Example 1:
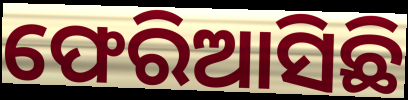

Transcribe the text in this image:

ଫେରିଆସିଛି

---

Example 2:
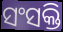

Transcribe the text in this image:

ସଂସକ୍ତି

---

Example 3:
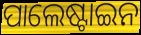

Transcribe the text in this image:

ପାଲେଷ୍ଟାଇନ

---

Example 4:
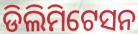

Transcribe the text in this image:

ଡିଲିମିଟେସନ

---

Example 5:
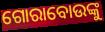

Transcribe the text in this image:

ଗୋରାବୋଉଙ୍କୁ